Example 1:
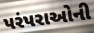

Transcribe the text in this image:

પરંપરાઓની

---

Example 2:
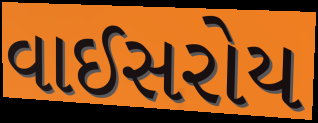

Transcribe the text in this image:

વાઈસરોય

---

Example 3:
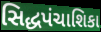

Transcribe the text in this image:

સિદ્ધપંચાશિકા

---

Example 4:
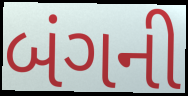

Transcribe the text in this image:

બંગની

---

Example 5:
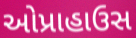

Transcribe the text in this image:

ઓપ્રાહાઉસ